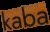
kaba